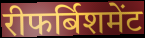
रीफर्बिशमेंट